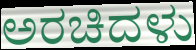
ಅರಚಿದಳು